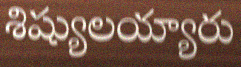
శిష్యులయ్యారు